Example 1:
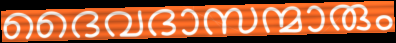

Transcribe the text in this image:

ദൈവദാസന്മാരും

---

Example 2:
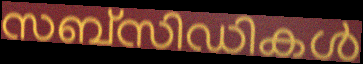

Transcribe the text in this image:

സബ്സിഡികൾ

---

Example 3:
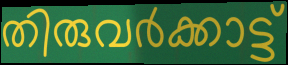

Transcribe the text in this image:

തിരുവർക്കാട്ട്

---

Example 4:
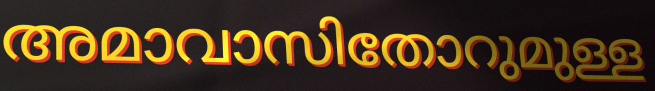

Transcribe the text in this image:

അമാവാസിതോറുമുള്ള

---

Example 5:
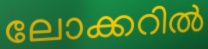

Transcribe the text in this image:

ലോക്കറിൽ